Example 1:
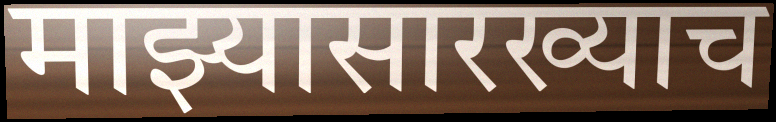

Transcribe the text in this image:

माझ्यासारख्याच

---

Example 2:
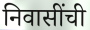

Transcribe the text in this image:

निवासींची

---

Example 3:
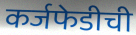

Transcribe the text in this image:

कर्जफेडीची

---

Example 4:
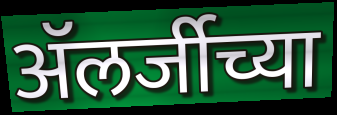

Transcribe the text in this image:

ॲलर्जीच्या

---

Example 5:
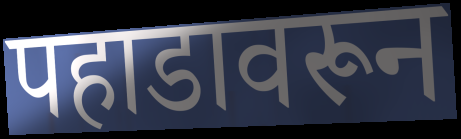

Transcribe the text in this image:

पहाडावरून